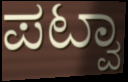
ಪಟ್ವಾ